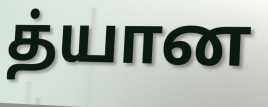
த்யான